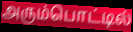
அரும்பொட்டில்